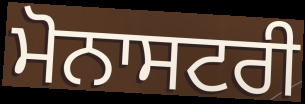
ਮੋਨਾਸਟਰੀ